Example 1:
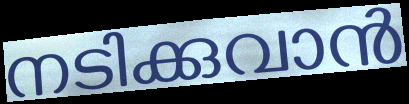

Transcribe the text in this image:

നടിക്കുവാൻ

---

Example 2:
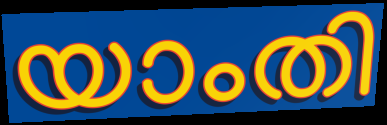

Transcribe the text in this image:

യാംതി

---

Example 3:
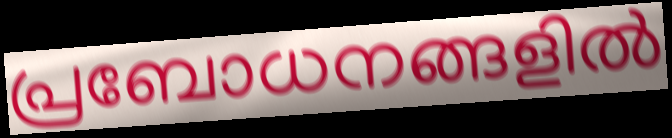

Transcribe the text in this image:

പ്രബോധനങ്ങളിൽ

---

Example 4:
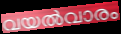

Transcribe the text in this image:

വയൽവാരം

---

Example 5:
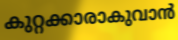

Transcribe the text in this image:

കുറ്റക്കാരാകുവാൻ